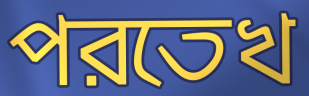
পরতেখ